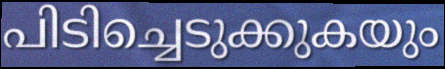
പിടിച്ചെടുക്കുകയും